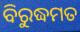
ବିରୁଦ୍ଧମତ